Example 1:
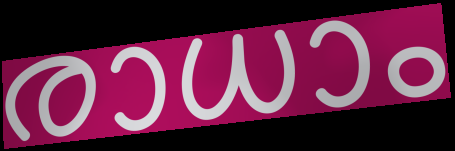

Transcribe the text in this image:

രാധാം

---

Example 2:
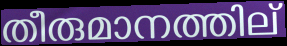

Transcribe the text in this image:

തീരുമാനത്തില്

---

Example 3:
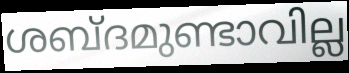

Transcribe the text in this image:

ശബ്ദമുണ്ടാവില്ല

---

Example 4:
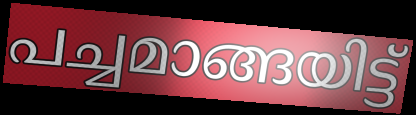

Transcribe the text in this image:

പച്ചമാങ്ങയിട്ട്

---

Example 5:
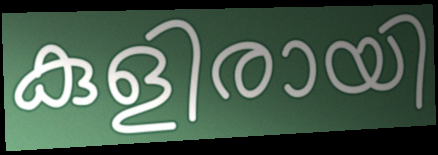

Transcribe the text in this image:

കുളിരായി